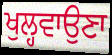
ਖੁਲ੍ਹਵਾਉਣਾ